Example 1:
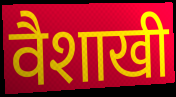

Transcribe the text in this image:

वैशाखी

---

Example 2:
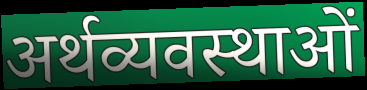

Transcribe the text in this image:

अर्थव्यवस्थाओं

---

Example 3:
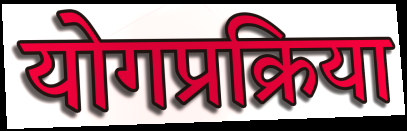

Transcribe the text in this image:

योगप्रक्रिया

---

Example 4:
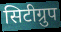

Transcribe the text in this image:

सिटीग्रुप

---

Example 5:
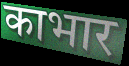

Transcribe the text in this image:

काभार